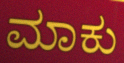
ಮಾಕು